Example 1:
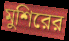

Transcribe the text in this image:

মুশিরের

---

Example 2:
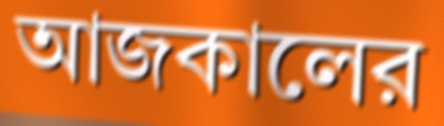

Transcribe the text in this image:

আজকালের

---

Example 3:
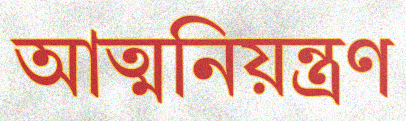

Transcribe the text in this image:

আত্মনিয়ন্ত্রণ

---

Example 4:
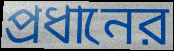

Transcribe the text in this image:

প্রধানের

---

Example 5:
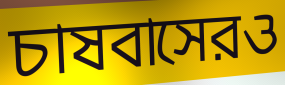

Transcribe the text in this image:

চাষবাসেরও